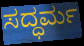
ಸದ್ಧರ್ಮ